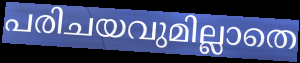
പരിചയവുമില്ലാതെ